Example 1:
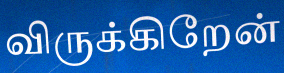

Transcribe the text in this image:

விருக்கிறேன்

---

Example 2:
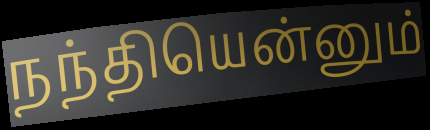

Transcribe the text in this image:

நந்தியென்னும்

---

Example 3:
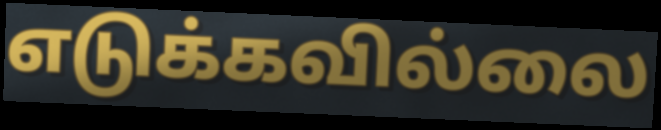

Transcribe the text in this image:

எடுக்கவில்லை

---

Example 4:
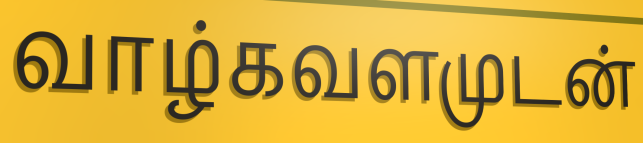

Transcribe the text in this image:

வாழ்கவளமுடன்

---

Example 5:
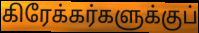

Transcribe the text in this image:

கிரேக்கர்களுக்குப்